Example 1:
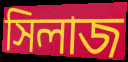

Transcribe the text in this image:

সিলাজ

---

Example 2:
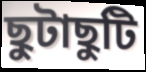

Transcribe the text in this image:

ছুটাছুটি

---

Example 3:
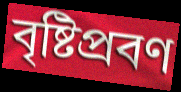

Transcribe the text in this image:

বৃষ্টিপ্রবণ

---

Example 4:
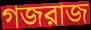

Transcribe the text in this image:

গজরাজ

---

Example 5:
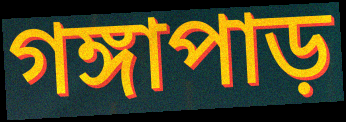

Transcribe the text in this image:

গঙ্গাপাড়